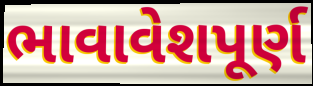
ભાવાવેશપૂર્ણ